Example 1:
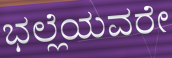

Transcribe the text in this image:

ಭಲ್ಲೆಯವರೇ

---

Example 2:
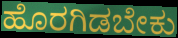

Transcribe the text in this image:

ಹೊರಗಿಡಬೇಕು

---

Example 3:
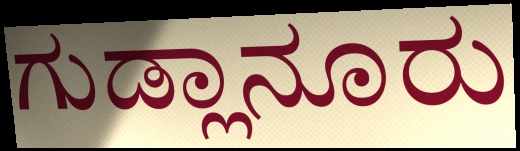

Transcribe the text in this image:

ಗುಡ್ಲಾನೂರು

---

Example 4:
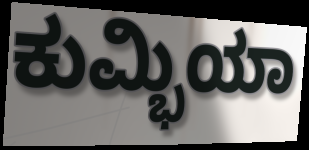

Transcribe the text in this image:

ಕುಮ್ಭಿಯಾ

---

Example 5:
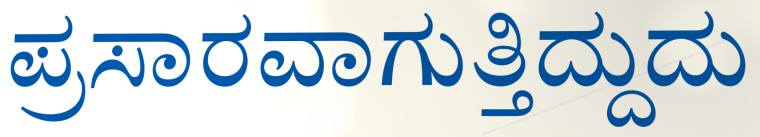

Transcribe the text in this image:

ಪ್ರಸಾರವಾಗುತ್ತಿದ್ದುದು